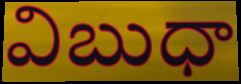
విబుధా